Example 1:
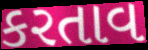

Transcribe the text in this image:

કરતાવ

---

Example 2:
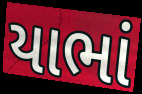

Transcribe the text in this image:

યાભાં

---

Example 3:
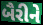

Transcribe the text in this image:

બૈરીને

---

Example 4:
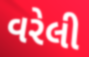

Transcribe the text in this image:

વરેલી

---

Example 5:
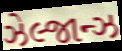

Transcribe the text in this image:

ઝેલ્જાન્ઝ